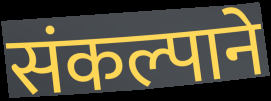
संकल्पाने